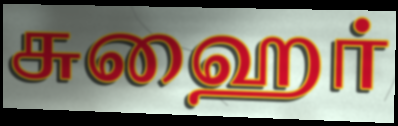
சுஹைர்